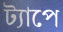
ট্যাপে